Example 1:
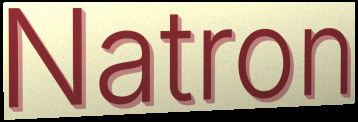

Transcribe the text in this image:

Natron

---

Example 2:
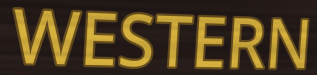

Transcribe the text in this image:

WESTERN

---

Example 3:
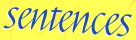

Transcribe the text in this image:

sentences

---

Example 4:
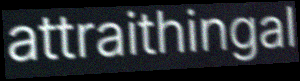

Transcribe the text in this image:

attraithingal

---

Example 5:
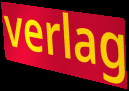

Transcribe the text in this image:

verlag